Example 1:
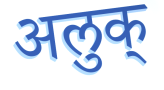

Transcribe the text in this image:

अलुक्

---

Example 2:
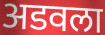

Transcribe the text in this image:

अडवला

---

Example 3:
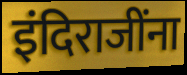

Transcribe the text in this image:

इंदिराजींना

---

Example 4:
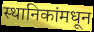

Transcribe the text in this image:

स्थानिकांमधून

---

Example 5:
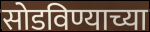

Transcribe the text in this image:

सोडविण्याच्या